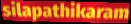
silapathikaram